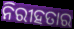
ନିରୀହତାର